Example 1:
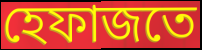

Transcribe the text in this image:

হেফাজতে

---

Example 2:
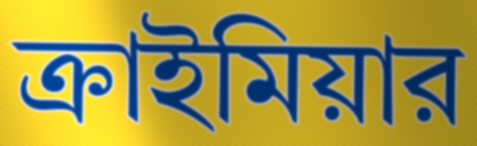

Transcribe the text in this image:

ক্রাইমিয়ার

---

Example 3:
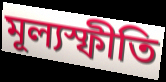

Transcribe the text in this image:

মূল্যস্ফীতি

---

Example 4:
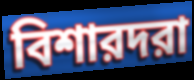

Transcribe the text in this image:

বিশারদরা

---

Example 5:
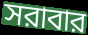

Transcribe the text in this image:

সরাবার